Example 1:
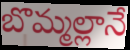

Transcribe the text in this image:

బొమ్మల్లానే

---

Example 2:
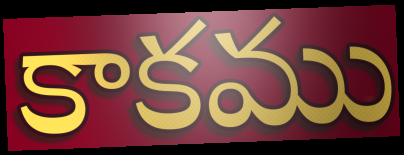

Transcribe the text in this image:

కాకము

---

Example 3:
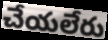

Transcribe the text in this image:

చేయలేరు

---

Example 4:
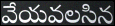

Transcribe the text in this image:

వేయవలసిన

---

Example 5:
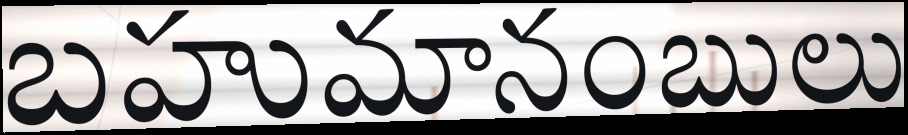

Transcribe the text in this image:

బహుమానంబులు